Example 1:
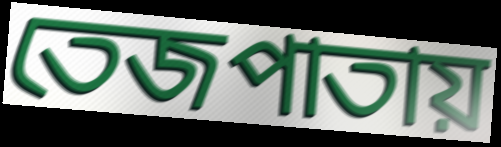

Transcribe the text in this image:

তেজপাতায়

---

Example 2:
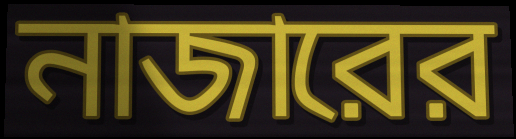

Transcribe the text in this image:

নাজারের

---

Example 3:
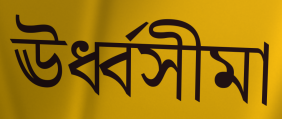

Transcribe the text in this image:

ঊর্ধ্বসীমা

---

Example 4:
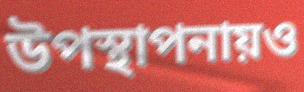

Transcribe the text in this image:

উপস্থাপনায়ও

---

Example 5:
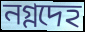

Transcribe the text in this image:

নগ্নদেহ